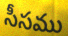
సీసము